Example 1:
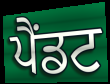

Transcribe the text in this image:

ਪੈਂਡਟ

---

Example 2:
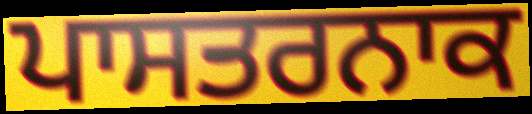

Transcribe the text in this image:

ਪਾਸਤਰਨਾਕ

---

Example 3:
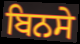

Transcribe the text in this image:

ਬਿਨਸੇ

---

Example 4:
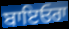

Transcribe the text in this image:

ਬਾਇਓਰਾ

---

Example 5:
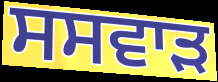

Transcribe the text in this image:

ਸਸਵਾੜ